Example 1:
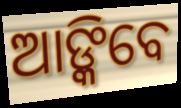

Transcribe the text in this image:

ଆଙ୍କିବେ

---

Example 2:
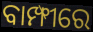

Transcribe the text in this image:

ବାମ୍ଫୀରେ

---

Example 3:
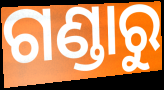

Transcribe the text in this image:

ଗଣ୍ଡାରୁ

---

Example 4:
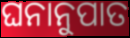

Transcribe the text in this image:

ଘନାନୁପାତ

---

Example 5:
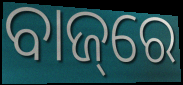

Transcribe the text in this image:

ବାଜ୍‌ରେ